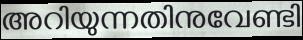
അറിയുന്നതിനുവേണ്ടി